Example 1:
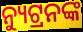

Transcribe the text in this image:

ନ୍ୟୁଟ୍ରନଙ୍କ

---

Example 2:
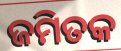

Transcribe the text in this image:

ଜମିତକ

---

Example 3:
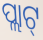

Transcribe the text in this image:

ପ୍ଲାଟ୍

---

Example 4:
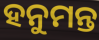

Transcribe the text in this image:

ହନୁମନ୍ତ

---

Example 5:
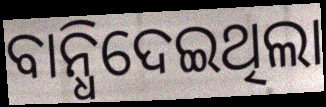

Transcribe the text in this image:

ବାନ୍ଧିଦେଇଥିଲା